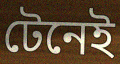
টেনেই